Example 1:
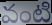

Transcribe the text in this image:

వంటి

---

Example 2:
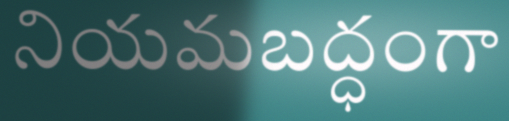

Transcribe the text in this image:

నియమబద్ధంగా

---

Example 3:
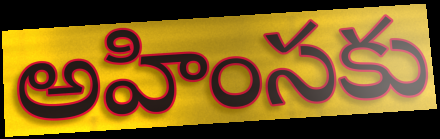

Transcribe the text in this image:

అహింసకు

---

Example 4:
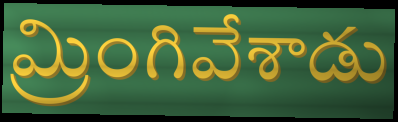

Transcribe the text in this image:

మ్రింగివేశాడు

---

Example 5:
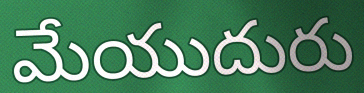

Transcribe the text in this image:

మేయుదురు